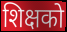
शिक्षको